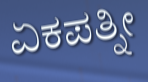
ಏಕಪತ್ನೀ